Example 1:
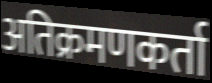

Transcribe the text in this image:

अतिक्रमणकर्ता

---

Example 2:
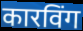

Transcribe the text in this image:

कारविंग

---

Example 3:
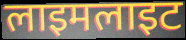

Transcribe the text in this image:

लाइमलाइट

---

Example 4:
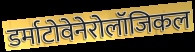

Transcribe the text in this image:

डर्माटोवेनेरोलॉजिकल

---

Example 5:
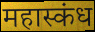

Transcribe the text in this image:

महास्कंध